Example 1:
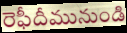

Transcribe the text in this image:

రెఫీదీమునుండి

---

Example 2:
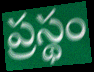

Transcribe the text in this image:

ప్రస్థం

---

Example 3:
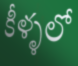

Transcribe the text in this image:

కీళ్ళలో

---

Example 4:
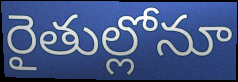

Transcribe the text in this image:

రైతుల్లోనూ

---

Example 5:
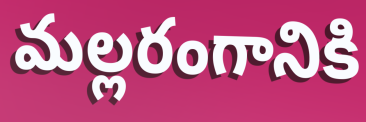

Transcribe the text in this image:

మల్లరంగానికి